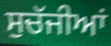
ਸੁਚੱਜੀਆਂ